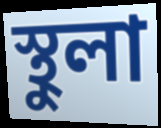
স্থুলা